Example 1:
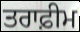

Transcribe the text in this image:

ਤਰਾਫ਼ੀਮ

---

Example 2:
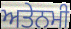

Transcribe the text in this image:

ਅਤੇਨਮੀ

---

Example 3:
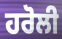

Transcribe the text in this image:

ਹਰੋਲੀ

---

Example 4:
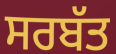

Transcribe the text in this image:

ਸਰਬੱਤ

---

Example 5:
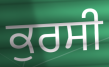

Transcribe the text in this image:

ਕੁਰਸੀ